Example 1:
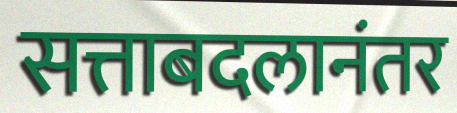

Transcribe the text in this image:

सत्ताबदलानंतर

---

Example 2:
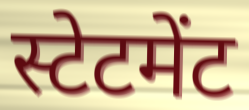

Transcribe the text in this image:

स्टेटमेंट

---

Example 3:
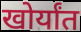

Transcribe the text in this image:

खोर्यांत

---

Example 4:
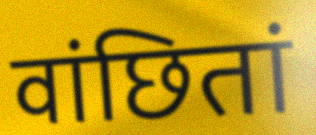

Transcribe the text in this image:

वांछितां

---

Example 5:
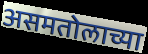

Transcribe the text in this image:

असमतोलाच्या